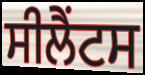
ਸੀਲੈਂਟਸ